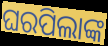
ଘରପିଲାଙ୍କ